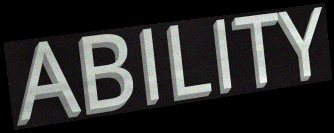
ABILITY